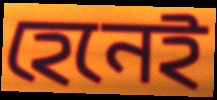
হেনেই